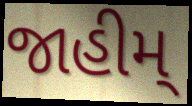
જાહીમ્